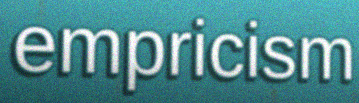
empricism